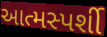
આત્મસ્પર્શી